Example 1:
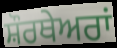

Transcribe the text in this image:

ਸ਼ੌਰਥੇਅਰਾਂ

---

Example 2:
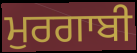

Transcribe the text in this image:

ਮੁਰਗਾਬੀ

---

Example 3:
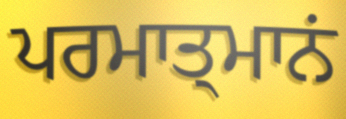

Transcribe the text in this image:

ਪਰਮਾਤ੍ਮਾਨਂ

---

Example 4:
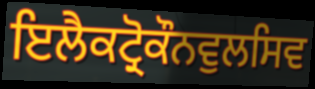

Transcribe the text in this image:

ਇਲੈਕਟ੍ਰੋਕੌਨਵੁਲਸਿਵ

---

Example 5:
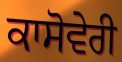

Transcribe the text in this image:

ਕਾਸੋਵੇਰੀ